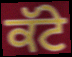
ਕੱਟੇ